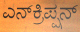
ಎನ್‌ಕ್ರಿಪ್ಷನ್